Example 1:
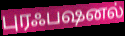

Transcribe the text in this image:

புரஃபஷனல்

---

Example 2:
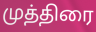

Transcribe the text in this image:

முத்திரை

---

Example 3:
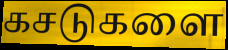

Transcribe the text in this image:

கசடுகளை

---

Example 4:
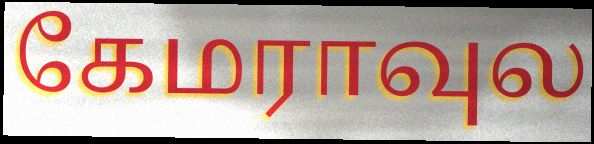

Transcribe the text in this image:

கேமராவுல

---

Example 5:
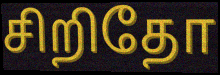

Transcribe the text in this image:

சிறிதோ